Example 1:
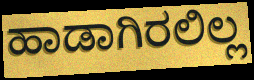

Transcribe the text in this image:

ಹಾಡಾಗಿರಲಿಲ್ಲ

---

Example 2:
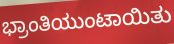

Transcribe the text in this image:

ಭ್ರಾಂತಿಯುಂಟಾಯಿತು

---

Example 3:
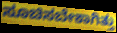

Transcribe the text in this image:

ಸೂಚಿಸಬೇಕಾಗಿತ್ತು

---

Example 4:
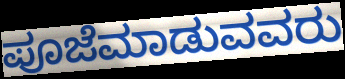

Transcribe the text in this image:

ಪೂಜೆಮಾಡುವವರು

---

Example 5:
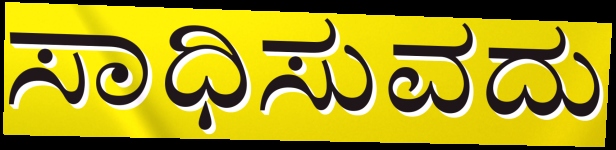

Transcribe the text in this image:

ಸಾಧಿಸುವದು